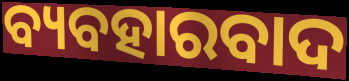
ବ୍ୟବହାରବାଦ